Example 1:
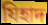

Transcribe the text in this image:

যিহাদ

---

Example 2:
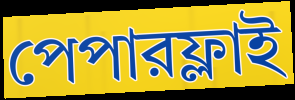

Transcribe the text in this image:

পেপারফ্লাই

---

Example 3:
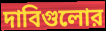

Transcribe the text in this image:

দাবিগুলোর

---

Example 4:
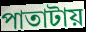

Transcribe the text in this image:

পাতাটায়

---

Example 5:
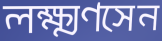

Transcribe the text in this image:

লক্ষ্মণসেন